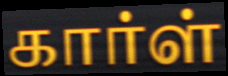
கார்ள்